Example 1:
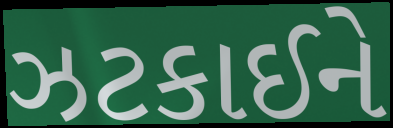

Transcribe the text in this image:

ઝટકાઈને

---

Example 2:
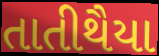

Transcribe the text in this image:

તાતીથૈયા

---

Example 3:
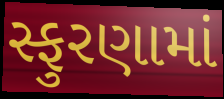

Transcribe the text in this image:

સ્ફુરણામાં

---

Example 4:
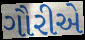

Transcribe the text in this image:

ગૌરીએ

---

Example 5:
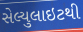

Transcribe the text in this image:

સેલ્યુલાઇટથી